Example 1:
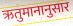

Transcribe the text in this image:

ऋतुमानानुसार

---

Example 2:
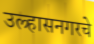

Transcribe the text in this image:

उल्हासनगरचे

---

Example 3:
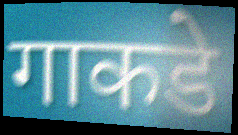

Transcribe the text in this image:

गाकडे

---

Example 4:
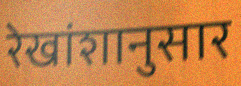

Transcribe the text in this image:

रेखांशानुसार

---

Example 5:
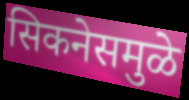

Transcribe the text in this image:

सिकनेसमुळे